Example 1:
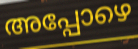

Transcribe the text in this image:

അപ്പോഴെ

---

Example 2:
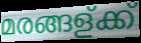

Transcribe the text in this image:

മരങ്ങള്ക്ക്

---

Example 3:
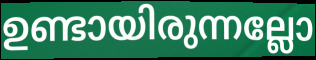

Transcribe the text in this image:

ഉണ്ടായിരുന്നല്ലോ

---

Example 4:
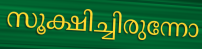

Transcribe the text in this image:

സൂക്ഷിച്ചിരുന്നോ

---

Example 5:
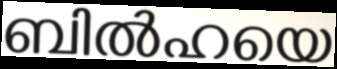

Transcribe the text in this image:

ബിൽഹയെ